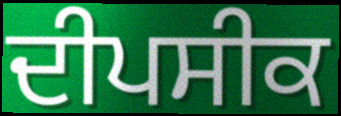
ਦੀਪਸੀਕ